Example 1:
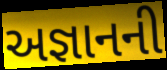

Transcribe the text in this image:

અજ્ઞાનની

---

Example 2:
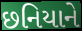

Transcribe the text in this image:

છનિયાને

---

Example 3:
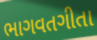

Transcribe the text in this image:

ભાગવતગીતા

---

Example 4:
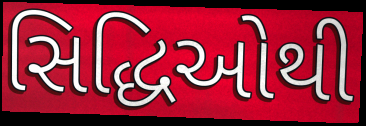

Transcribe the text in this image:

સિદ્ધિઓથી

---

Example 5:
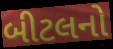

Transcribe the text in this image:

બીટલનો